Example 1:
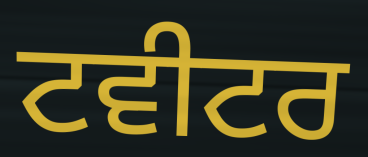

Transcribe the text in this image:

ਟਵੀਟਰ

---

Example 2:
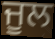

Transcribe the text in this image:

ਜੂਲ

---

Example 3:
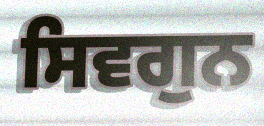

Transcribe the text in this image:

ਸਿਵਗੁਨ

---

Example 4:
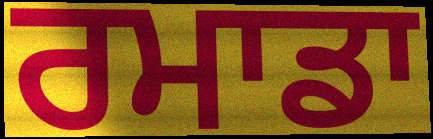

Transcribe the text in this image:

ਰਮਾਡਾ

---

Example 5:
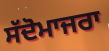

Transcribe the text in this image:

ਸੱਦੋਮਾਜਰਾ